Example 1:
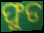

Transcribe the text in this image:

ଫୁଡ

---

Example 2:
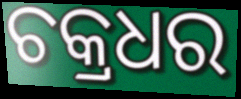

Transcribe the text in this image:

ଚକ୍ରଧର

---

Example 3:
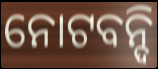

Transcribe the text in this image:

ନୋଟବନ୍ଦି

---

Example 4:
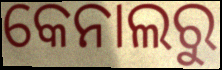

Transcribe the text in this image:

କେନାଲରୁ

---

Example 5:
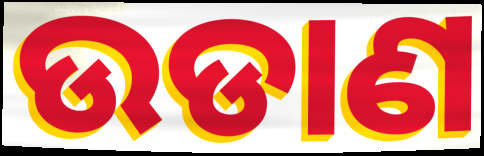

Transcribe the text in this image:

ଉଡାଣ